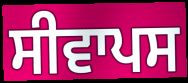
ਸੀਵਾਪਸ